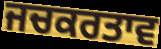
ਜਚਕਰਤਾਵ